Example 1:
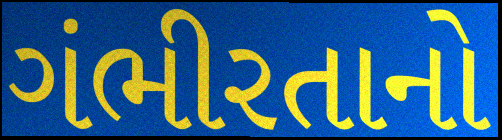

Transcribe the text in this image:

ગંભીરતાનો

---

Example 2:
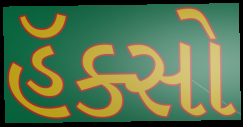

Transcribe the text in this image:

હૅક્સો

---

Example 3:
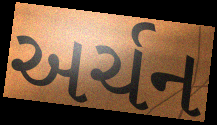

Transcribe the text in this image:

અર્ચન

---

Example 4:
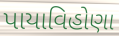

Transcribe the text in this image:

પાયાવિહોણા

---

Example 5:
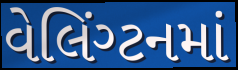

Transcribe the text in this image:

વેલિંગ્ટનમાં